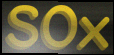
SOx